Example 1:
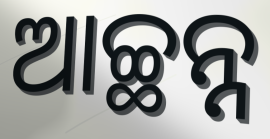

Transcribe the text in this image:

ଆଚ୍ଛନ୍ନ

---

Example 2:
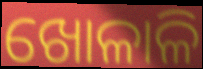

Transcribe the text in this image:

ଖୋଳାଳି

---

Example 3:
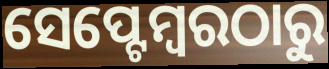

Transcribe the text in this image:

ସେପ୍ଟେମ୍ବରଠାରୁ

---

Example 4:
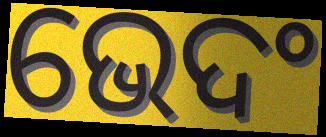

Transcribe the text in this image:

ଭେଦଂ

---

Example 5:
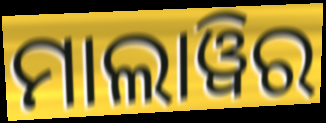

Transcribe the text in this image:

ମାଲାୱିର